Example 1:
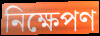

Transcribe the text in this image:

নিক্ষেপণ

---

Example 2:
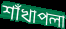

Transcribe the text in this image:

শাঁখাপলা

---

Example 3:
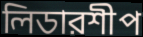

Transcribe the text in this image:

লিডারশীপ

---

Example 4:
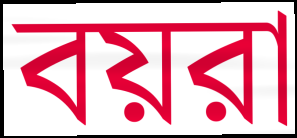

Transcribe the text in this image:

বয়রা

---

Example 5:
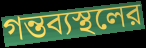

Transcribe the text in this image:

গন্তব্যস্থলের